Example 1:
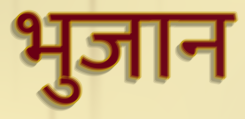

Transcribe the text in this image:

भुजान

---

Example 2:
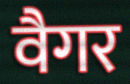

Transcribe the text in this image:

वैगर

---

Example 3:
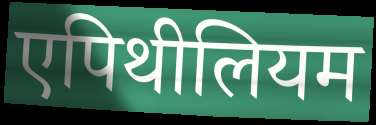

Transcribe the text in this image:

एपिथीलियम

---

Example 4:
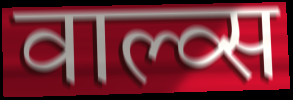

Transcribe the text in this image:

वाल्व्स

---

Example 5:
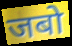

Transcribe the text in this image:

जबो